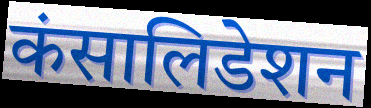
कंसालिडेशन